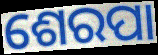
ଶେରପା